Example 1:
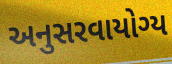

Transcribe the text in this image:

અનુસરવાયોગ્ય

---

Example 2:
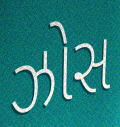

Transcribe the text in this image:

ઝોસ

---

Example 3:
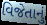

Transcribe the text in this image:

વિજેતાનું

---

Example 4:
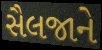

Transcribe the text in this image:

સૈલજાને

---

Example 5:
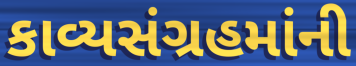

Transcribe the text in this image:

કાવ્યસંગ્રહમાંની